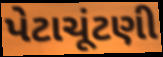
પેટાચૂંટણી